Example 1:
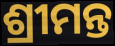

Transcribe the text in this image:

ଶ୍ରୀମନ୍ତ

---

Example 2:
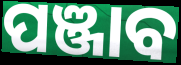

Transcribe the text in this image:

ପଞ୍ଜାବ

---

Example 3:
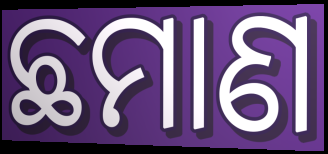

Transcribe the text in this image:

ଛମାଣ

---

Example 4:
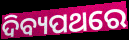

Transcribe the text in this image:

ଦିବ୍ୟପଥରେ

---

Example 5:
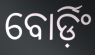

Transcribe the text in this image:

ବୋର୍ଡ଼ିଂ